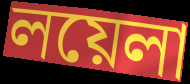
লয়েলা